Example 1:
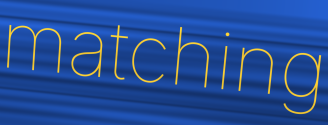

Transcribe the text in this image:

matching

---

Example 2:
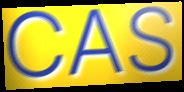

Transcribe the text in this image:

CAS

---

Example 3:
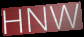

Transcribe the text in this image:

HNW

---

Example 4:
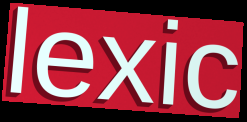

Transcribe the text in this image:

lexic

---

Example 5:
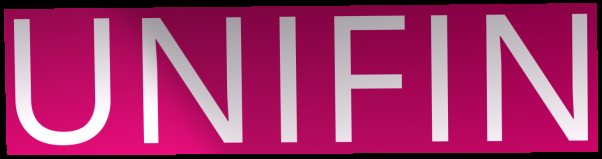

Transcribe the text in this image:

UNIFIN